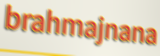
brahmajnana